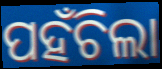
ପହଁଚିଲା